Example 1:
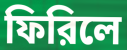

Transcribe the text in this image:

ফিরিলে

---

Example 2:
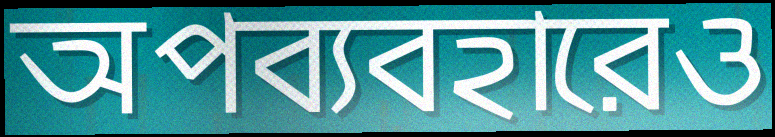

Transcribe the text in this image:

অপব্যবহারেও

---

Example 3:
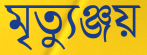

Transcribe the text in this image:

মৃত্যুঞ্জয়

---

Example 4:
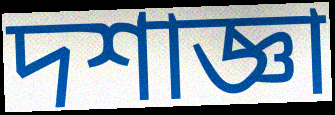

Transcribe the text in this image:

দশাজ্ঞা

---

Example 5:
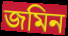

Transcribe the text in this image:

জমিন